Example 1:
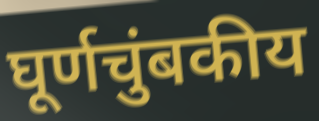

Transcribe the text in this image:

घूर्णचुंबकीय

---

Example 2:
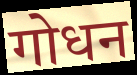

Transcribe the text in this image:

गोधन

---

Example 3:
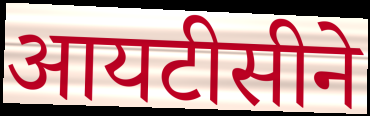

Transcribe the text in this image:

आयटीसीने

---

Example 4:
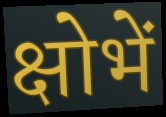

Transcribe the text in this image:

क्षोभें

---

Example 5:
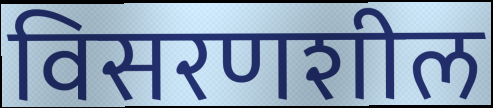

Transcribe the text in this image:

विसरणशील